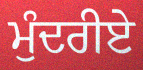
ਮੁੰਦਰੀਏ